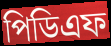
পিডিএফ